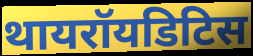
थायरॉयडिटिस